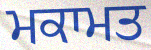
ਮਕਾਮਤ